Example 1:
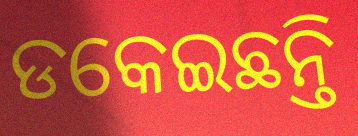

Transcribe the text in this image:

ଡକେଇଛନ୍ତି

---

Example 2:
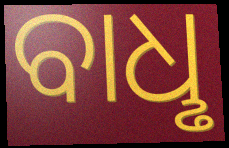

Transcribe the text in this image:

ବାଧୢ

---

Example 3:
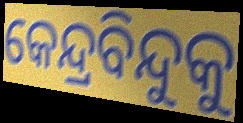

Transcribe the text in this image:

କେନ୍ଦ୍ରବିନ୍ଦୁକୁ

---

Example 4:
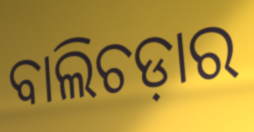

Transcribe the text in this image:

ବାଲିଚଡ଼ାର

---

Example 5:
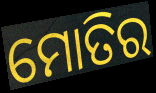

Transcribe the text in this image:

ମୋତିର